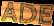
ADE